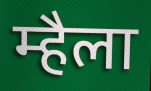
म्हैला